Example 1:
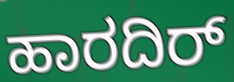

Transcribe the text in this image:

ಹಾರದಿರ್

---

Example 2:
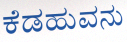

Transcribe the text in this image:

ಕೆಡಹುವನು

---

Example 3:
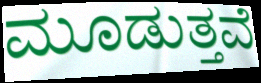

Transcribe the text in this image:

ಮೂಡುತ್ತವೆ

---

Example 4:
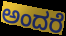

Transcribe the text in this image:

ಅಂದರೆ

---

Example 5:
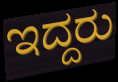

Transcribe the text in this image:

ಇದ್ದರು